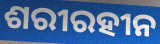
ଶରୀରହୀନ